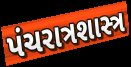
પંચરાત્રશાસ્ત્ર